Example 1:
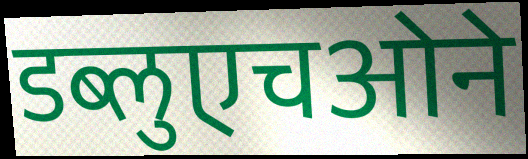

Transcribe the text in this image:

डब्लुएचओने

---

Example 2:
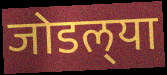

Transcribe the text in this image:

जोडल्या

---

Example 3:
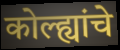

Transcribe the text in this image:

कोल्ह्यांचे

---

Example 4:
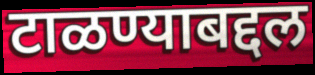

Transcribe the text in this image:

टाळण्याबद्दल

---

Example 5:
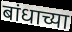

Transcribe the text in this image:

बांधाच्या